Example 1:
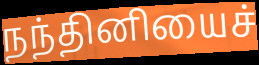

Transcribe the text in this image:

நந்தினியைச்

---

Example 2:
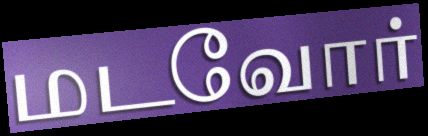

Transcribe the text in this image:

மடவோர்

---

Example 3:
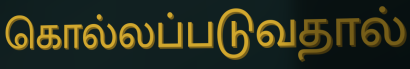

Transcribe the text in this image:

கொல்லப்படுவதால்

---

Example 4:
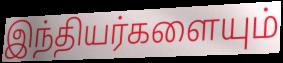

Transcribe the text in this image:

இந்தியர்களையும்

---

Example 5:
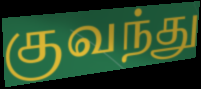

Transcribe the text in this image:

குவந்து